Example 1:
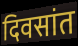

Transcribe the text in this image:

दिवसांत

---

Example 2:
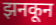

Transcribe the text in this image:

झनकून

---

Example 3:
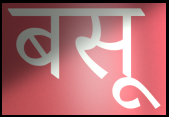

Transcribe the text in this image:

बसू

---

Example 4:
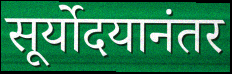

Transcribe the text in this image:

सूर्योदयानंतर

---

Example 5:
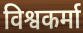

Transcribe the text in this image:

विश्वकर्मा